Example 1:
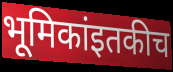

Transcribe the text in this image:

भूमिकांइतकीच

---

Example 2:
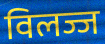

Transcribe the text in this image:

विलज्ज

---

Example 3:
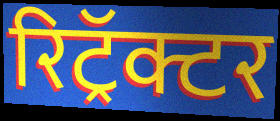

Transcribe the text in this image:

रिट्रॅक्टर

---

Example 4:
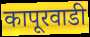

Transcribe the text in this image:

कापूरवाडी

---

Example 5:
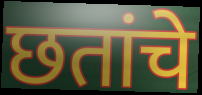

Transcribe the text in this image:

छतांचे